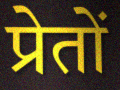
प्रेतों